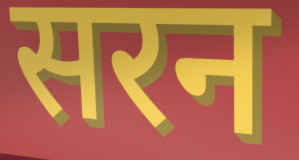
सरन